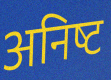
अनिष्‍ट